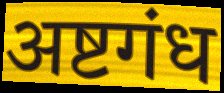
अष्टगंध